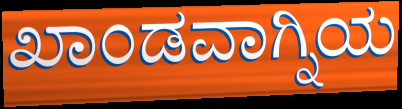
ಖಾಂಡವಾಗ್ನಿಯ